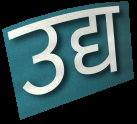
उद्य